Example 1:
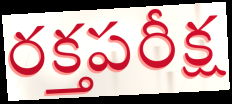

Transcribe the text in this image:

రక్తపరీక్ష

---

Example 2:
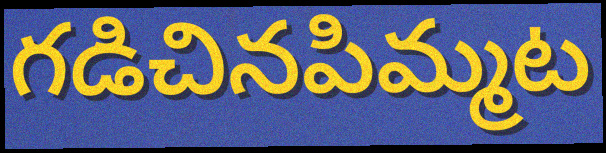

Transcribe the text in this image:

గడిచినపిమ్మట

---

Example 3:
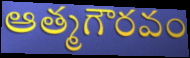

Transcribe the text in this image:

ఆత్మగౌరవం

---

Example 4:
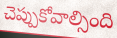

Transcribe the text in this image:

చెప్పుకోవాల్సింది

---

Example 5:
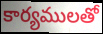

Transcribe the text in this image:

కార్యములతో